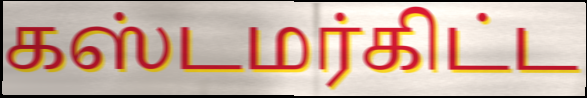
கஸ்டமர்கிட்ட